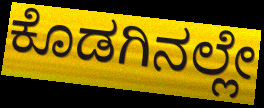
ಕೊಡಗಿನಲ್ಲೇ